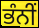
ਭੰਨੀਂ